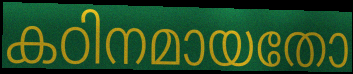
കഠിനമായതോ